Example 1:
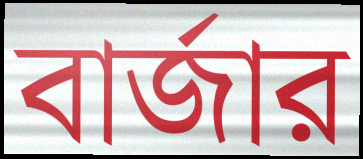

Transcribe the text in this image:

বার্জার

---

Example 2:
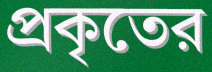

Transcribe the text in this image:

প্রকৃতের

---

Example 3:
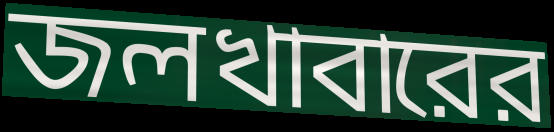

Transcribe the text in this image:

জলখাবারের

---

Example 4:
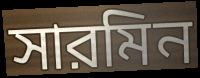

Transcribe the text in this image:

সারমিন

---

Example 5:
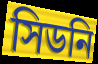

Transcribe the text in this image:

সিডনি